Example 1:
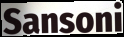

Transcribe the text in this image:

Sansoni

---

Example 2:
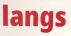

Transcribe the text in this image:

langs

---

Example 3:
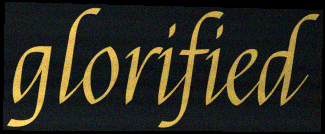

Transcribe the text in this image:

glorified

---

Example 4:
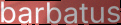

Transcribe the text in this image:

barbatus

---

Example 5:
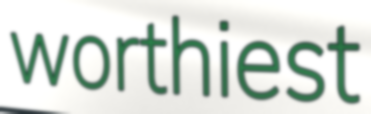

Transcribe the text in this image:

worthiest